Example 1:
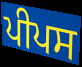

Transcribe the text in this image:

ਪੀਪਸ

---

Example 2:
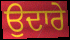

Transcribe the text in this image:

ਉਦਾਰੇ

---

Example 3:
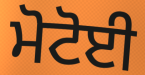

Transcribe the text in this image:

ਮੋਟੋਈ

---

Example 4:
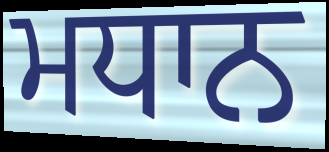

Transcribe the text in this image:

ਮਧਾਨ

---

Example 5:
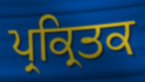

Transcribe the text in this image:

ਪ੍ਰਕ੍ਰਿਤਕ